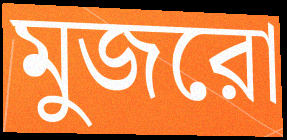
মুজরো